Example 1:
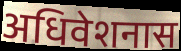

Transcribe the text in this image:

अधिवेशनास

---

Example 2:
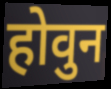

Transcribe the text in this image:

होवुन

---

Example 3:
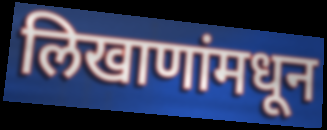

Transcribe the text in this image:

लिखाणांमधून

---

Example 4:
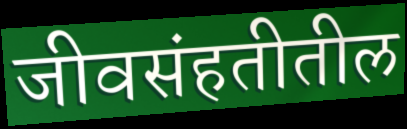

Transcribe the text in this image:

जीवसंहतीतील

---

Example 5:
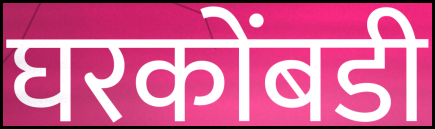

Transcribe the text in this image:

घरकोंबडी